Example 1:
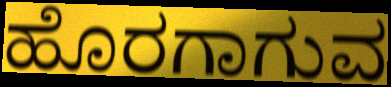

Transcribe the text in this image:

ಹೊರಗಾಗುವ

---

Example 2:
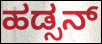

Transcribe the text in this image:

ಹಡ್ಸನ್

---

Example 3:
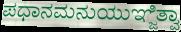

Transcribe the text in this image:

ಪಧಾನಮನುಯುಞ್ಜಿತ್ವಾ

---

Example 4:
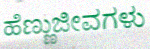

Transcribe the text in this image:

ಹೆಣ್ಣುಜೀವಗಳು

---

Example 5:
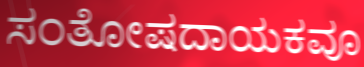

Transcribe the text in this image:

ಸಂತೋಷದಾಯಕವೂ